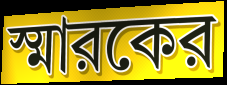
স্মারকের